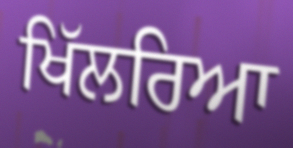
ਖਿੱਲਰਿਆ